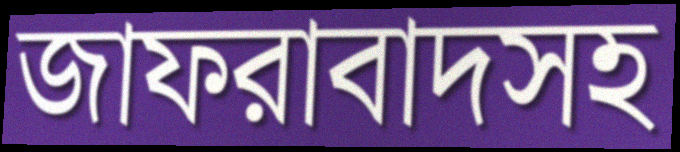
জাফরাবাদসহ